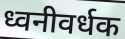
ध्वनीवर्धक